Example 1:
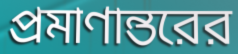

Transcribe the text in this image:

প্রমাণান্তরের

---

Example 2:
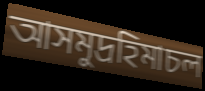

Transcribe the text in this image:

আসমুদ্রহিমাচল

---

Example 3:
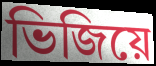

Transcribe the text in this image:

ভিজিয়ে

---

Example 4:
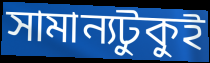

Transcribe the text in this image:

সামান্যটুকুই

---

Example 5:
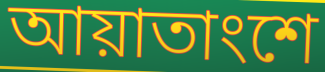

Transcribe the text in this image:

আয়াতাংশে